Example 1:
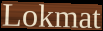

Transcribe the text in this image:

Lokmat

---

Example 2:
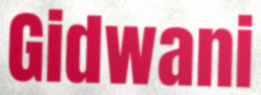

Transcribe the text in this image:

Gidwani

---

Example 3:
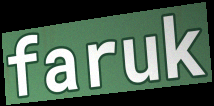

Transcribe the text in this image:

faruk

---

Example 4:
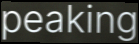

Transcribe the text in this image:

peaking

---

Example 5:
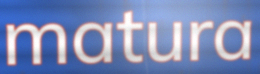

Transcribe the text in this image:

matura